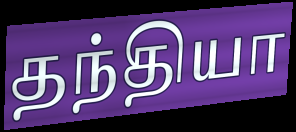
தந்தியா